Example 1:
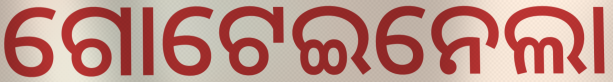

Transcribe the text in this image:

ଗୋଟେଇନେଲା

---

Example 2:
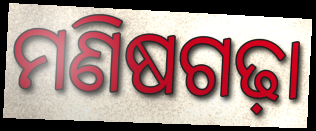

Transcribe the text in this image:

ମଣିଷଗଢ଼ା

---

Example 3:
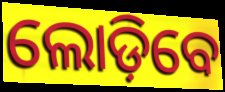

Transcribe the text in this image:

ଲୋଡ଼ିବେ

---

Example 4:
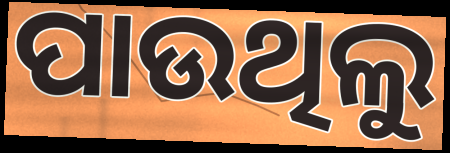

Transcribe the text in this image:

ପାଉଥିଲୁ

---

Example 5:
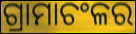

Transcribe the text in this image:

ଗ୍ରାମାଚଂଳର